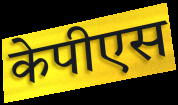
केपीएस